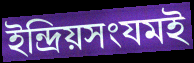
ইন্দ্রিয়সংযমই